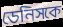
ডেনিসকে